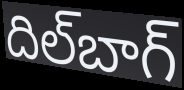
దిల్‌బాగ్